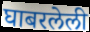
घाबरलेली